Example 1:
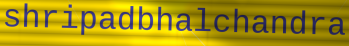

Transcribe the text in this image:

shripadbhalchandra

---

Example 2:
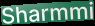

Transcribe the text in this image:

Sharmmi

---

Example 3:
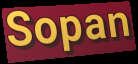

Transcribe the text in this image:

Sopan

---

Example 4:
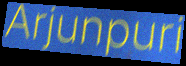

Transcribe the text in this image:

Arjunpuri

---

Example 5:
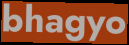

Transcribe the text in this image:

bhagyo